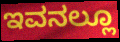
ಇವನಲ್ಲೂ